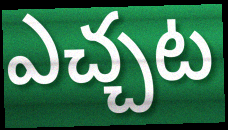
ఎచ్చట